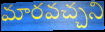
మారవచ్చని